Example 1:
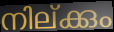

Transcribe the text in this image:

നില്ക്കും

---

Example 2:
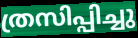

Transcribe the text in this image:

ത്രസിപ്പിച്ചു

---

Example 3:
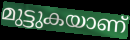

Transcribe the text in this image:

മുട്ടുകയാണ്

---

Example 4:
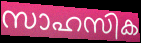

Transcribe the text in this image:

സാഹസിക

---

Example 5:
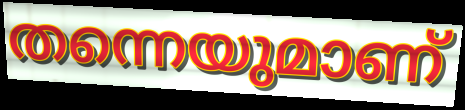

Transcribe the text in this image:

തന്നെയുമാണ്